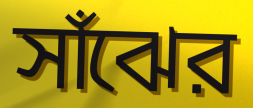
সাঁঝের